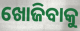
ଖୋଜିବାକୁ